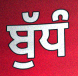
ਬੁੱਧੰ